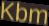
Kbm